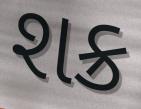
શક્ર